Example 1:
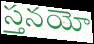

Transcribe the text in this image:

స్తనయో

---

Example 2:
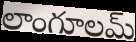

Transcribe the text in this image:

లాంగూలమ్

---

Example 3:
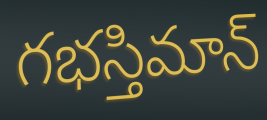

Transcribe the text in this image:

గభస్తిమాన్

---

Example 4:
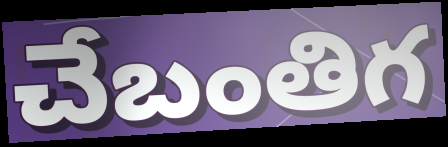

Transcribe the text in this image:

చేబంతిగ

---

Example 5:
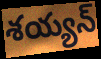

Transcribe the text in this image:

శయ్యన్